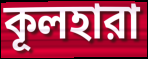
কূলহারা